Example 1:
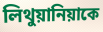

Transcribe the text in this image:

লিথুয়ানিয়াকে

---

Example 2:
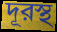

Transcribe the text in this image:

দূরস্থ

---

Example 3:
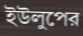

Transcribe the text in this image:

ইউলুপের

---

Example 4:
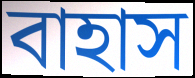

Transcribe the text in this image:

বাহাস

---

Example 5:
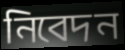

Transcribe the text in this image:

নিবেদন